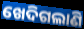
ଖେଦିଗଲାଣି